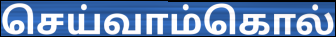
செய்வாம்கொல்